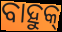
ବାହୁକ୍